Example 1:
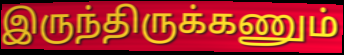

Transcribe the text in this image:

இருந்திருக்கணும்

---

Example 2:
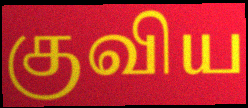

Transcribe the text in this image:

குவிய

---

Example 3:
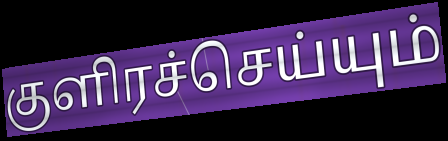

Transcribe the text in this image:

குளிரச்செய்யும்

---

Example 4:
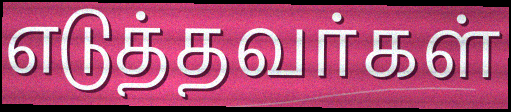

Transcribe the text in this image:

எடுத்தவர்கள்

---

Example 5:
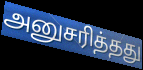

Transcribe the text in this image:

அனுசரித்தது